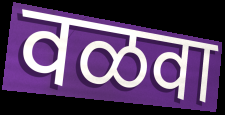
वळवा